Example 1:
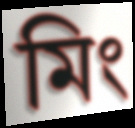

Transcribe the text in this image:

মিং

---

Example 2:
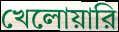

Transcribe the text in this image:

খেলোয়ারি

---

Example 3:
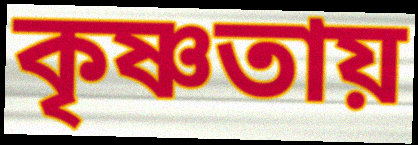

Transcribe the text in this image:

কৃষ্ণতায়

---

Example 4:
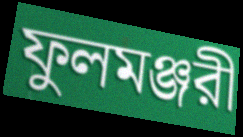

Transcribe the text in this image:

ফুলমঞ্জরী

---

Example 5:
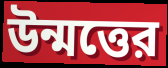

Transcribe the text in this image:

উন্মত্তের